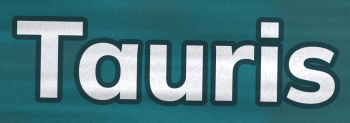
Tauris